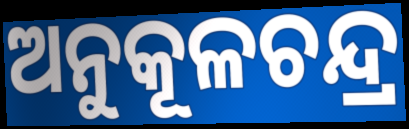
ଅନୁକୂଳଚନ୍ଦ୍ର